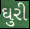
ઘુરી